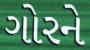
ગોરને